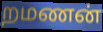
றமணன்